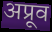
अप्रूव